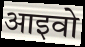
आइवो